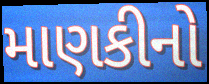
માણકીનો